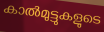
കാൽമുട്ടുകളുടെ